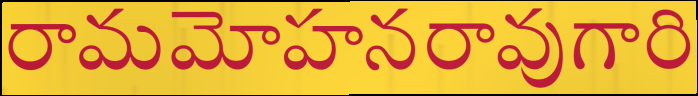
రామమోహనరావుగారి